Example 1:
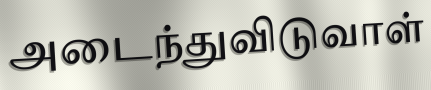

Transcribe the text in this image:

அடைந்துவிடுவாள்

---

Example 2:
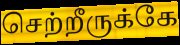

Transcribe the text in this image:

செற்றீருக்கே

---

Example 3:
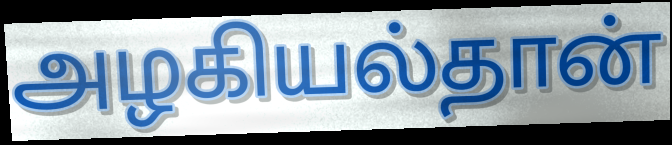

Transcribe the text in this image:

அழகியல்தான்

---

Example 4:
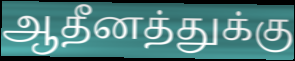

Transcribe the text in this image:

ஆதீனத்துக்கு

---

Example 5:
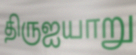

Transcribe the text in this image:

திருஐயாறு